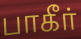
பாகீர்